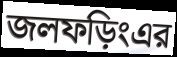
জলফড়িংএর